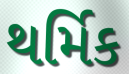
થર્મિક